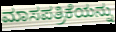
ಮಾಸಪತ್ರಿಕೆಯನ್ನು